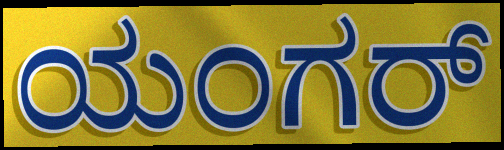
ಯಂಗರ್